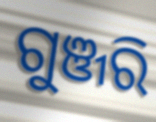
ଗୁଞ୍ଜରି